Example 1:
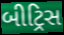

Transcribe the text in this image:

બીટ્રિસ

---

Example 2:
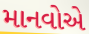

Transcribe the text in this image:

માનવોએ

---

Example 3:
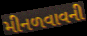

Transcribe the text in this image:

મીનળવાવની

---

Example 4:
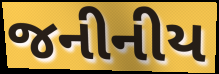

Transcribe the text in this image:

જનીનીય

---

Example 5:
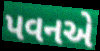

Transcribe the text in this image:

પવનએ